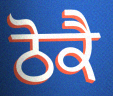
ਠੋਕੈ